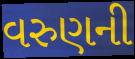
વરુણની